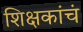
शिक्षकांचं